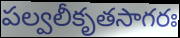
పల్వలీకృతసాగరః